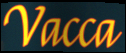
Vacca